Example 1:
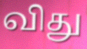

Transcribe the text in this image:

விது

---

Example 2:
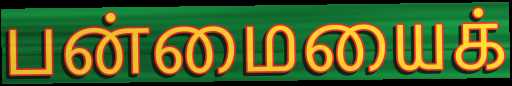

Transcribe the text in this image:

பன்மையைக்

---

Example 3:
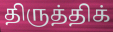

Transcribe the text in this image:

திருத்திக்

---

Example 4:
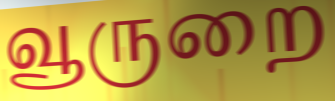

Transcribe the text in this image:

வூருறை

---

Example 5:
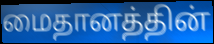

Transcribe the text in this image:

மைதானத்தின்